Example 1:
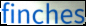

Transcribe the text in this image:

finches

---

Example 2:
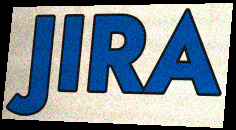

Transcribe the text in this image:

JIRA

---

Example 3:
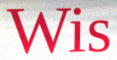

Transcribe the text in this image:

Wis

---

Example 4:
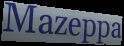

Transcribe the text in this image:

Mazeppa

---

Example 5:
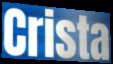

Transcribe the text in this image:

Crista